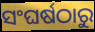
ସଂଘର୍ଷଠାରୁ